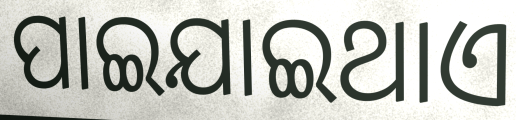
ପାଇଯାଇଥାଏ